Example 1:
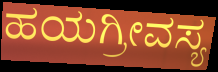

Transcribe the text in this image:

ಹಯಗ್ರೀವಸ್ಯ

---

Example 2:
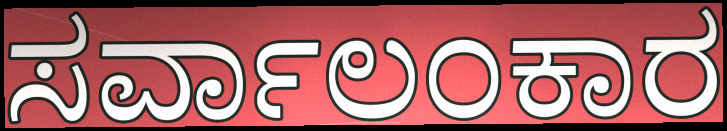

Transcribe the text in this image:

ಸರ್ವಾಲಂಕಾರ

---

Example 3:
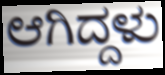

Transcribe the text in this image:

ಆಗಿದ್ದಳು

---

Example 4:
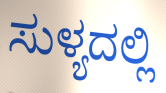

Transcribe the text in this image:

ಸುಳ್ಯದಲ್ಲಿ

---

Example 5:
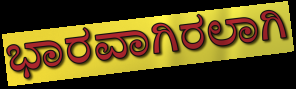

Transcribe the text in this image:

ಭಾರವಾಗಿರಲಾಗಿ